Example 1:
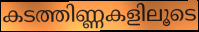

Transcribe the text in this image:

കടത്തിണ്ണകളിലൂടെ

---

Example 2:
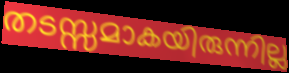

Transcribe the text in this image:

തടസ്സമാകയിരുന്നില്ല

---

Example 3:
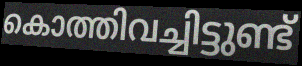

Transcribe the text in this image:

കൊത്തിവച്ചിട്ടുണ്ട്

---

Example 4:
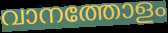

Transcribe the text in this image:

വാനത്തോളം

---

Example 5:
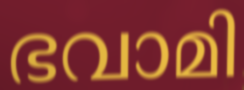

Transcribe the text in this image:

ഭവാമി